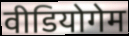
वीडियोगेम